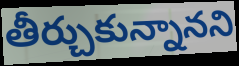
తీర్చుకున్నానని